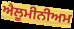
ਐਲੂਮੀਨੀਅਮ